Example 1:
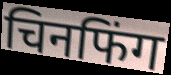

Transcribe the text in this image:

चिनफिंग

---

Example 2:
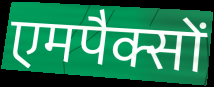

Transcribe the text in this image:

एमपैक्सों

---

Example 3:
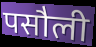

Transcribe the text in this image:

पसौली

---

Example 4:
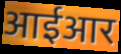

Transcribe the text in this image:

आईआर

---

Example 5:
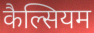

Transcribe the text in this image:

कैल्सियम